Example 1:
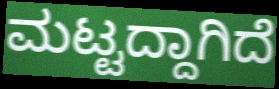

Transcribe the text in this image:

ಮಟ್ಟದ್ದಾಗಿದೆ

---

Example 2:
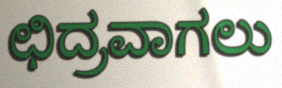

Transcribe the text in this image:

ಛಿದ್ರವಾಗಲು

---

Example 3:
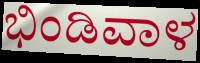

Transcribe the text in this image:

ಭಿಂಡಿವಾಳ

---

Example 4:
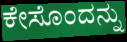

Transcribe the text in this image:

ಕೇಸೊಂದನ್ನು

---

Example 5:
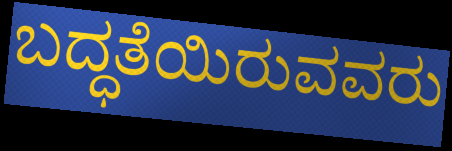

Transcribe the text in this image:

ಬದ್ಧತೆಯಿರುವವರು